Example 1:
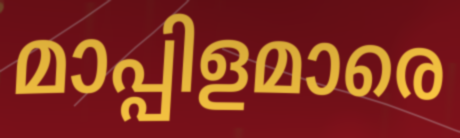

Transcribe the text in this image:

മാപ്പിളമാരെ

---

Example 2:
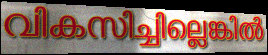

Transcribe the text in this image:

വികസിച്ചില്ലെങ്കിൽ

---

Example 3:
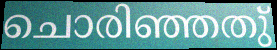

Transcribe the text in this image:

ചൊരിഞ്ഞതു്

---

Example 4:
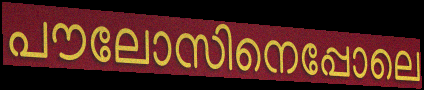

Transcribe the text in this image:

പൗലോസിനെപ്പോലെ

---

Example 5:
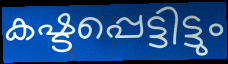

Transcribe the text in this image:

കഷ്ടപ്പെട്ടിട്ടും